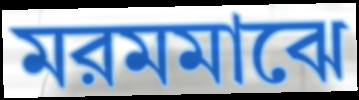
মরমমাঝে